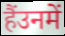
हैंउनमें